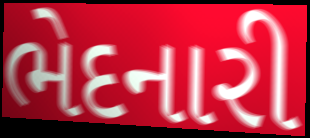
ભેદનારી